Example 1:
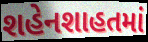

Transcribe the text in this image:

શહેનશાહતમાં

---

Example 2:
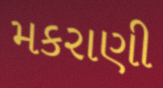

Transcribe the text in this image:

મકરાણી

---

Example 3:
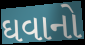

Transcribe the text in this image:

ઘવાનો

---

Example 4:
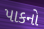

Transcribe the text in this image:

પાકનો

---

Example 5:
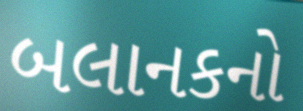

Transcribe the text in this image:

બલાનકનો